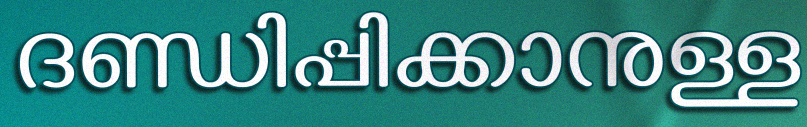
ദണ്ഡിപ്പിക്കാനുള്ള